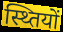
स्थ्तियों